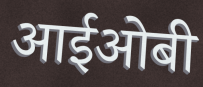
आईओबी